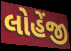
લોહેંજી